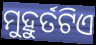
ମୁହୁର୍ତଟିଏ